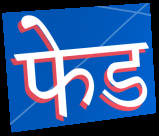
फेड